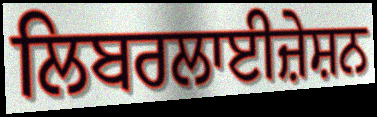
ਲਿਬਰਲਾਈਜ਼ੇਸ਼ਨ